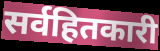
सर्वहितकारी